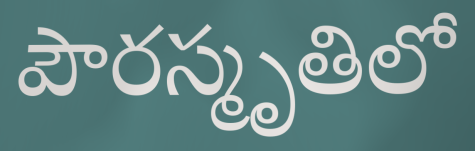
పౌరస్మృతిలో